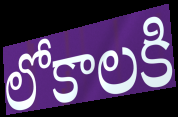
లోకాలకి